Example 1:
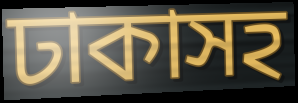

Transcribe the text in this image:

ঢাকাসহ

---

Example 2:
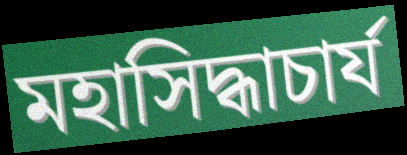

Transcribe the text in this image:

মহাসিদ্ধাচার্য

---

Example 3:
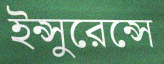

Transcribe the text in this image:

ইন্সুরেন্সে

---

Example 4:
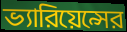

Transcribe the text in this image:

ভ্যারিয়েন্সের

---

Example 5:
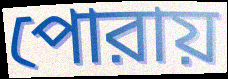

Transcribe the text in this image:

পোরায়